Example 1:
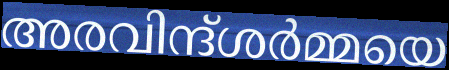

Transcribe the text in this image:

അരവിന്ദ്ശർമ്മയെ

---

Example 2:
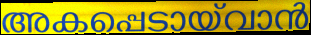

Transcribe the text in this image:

അകപ്പെടായ്‌വാൻ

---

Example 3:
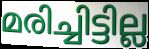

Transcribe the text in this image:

മരിച്ചിട്ടില്ല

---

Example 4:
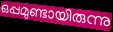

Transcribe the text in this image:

ഒപ്പമുണ്ടായിരുന്നു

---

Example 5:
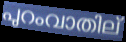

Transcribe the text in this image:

പുറംവാതില്